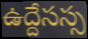
ఉద్దేసస్స